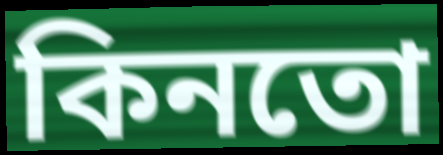
কিনতো